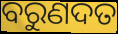
ବରୁଣଦତ